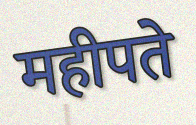
महीपते